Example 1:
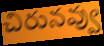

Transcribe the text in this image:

చిరునవ్వు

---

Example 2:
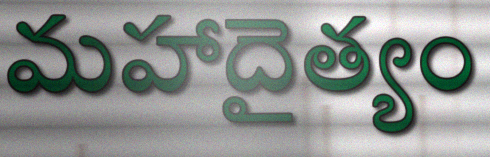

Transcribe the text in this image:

మహాదైత్యం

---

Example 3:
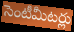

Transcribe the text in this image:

సెంటీమీటర్లు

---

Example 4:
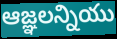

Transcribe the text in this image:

ఆజ్ఞలన్నియు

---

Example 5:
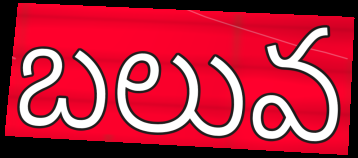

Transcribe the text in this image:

బలువ